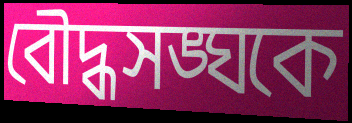
বৌদ্ধসঙ্ঘকে